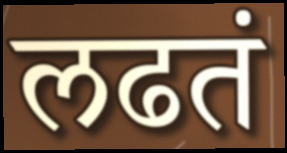
लढतं